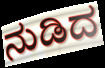
ನುಡಿದ